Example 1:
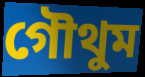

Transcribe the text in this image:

গৌথুম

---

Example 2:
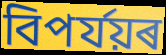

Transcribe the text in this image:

বিপৰ্যয়ৰ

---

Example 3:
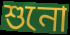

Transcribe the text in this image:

শুনো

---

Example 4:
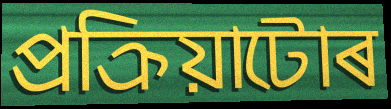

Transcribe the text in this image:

প্ৰক্ৰিয়াটোৰ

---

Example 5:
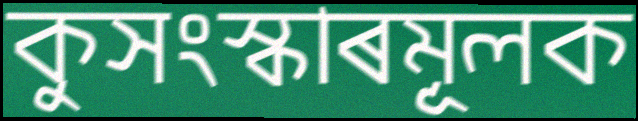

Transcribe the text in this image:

কুসংস্কাৰমূলক